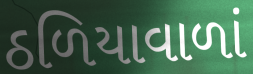
ઠળિયાવાળાં